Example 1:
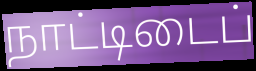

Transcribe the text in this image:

நாட்டிடைப்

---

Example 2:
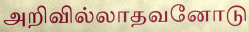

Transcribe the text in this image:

அறிவில்லாதவனோடு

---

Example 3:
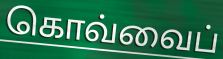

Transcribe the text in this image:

கொவ்வைப்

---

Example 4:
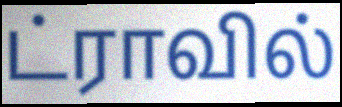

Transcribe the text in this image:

ட்ராவில்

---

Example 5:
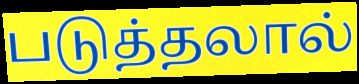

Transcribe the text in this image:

படுத்தலால்